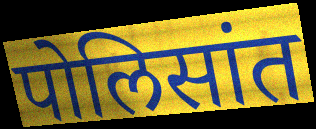
पोलिसांत